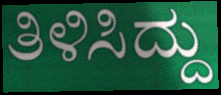
ತಿಳಿಸಿದ್ದು